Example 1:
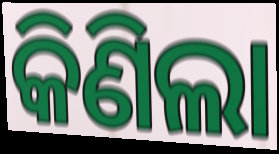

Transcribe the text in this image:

କିଣିଲା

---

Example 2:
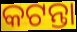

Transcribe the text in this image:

କଟନ୍ତା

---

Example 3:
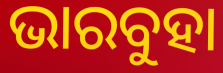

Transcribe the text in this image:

ଭାରବୁହା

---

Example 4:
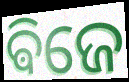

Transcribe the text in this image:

ଵିଜେ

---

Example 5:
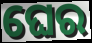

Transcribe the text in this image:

ଘେର